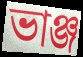
ভাঞ্জ